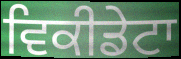
ਵਿਕੀਡੇਟਾ